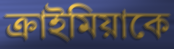
ক্রাইমিয়াকে